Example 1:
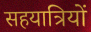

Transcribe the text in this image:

सहयात्रियों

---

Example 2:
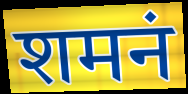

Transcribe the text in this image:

शमनं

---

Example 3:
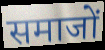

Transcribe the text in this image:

समाजों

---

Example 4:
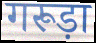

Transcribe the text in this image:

गरूड़ा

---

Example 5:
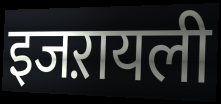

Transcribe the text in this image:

इजऱायली